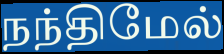
நந்திமேல்